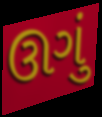
ઊગું